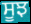
ਸੂਝ